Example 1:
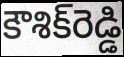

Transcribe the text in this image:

కౌశిక్‌రెడ్డి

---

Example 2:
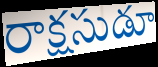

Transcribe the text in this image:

రాక్షసుడూ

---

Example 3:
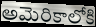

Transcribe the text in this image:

అమెరికాలోకి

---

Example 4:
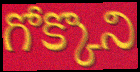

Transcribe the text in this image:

గోక్కొని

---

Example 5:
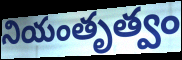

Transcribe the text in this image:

నియంతృత్వం